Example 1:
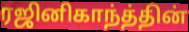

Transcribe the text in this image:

ரஜினிகாந்த்தின்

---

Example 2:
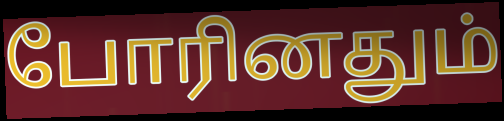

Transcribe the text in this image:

போரினதும்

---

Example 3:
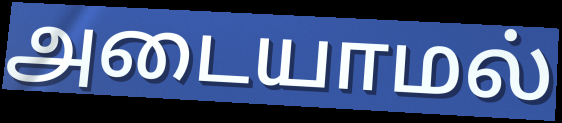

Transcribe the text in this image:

அடையாமல்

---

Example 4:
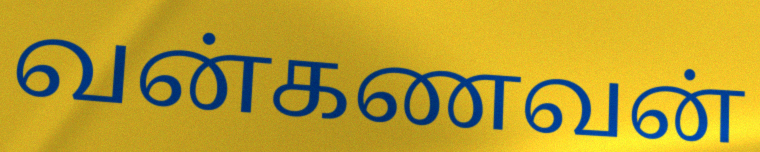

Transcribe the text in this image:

வன்கணவன்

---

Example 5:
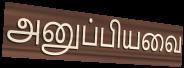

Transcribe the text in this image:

அனுப்பியவை